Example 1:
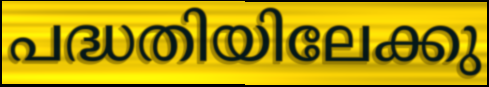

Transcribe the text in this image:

പദ്ധതിയിലേക്കു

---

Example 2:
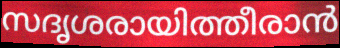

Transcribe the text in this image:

സദൃശരായിത്തീരാൻ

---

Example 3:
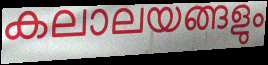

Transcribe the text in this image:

കലാലയങ്ങളും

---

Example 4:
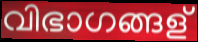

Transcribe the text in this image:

വിഭാഗങ്ങള്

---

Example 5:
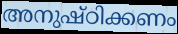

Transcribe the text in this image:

അനുഷ്ഠിക്കണം